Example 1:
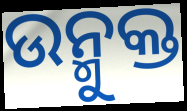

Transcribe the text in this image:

ଉନ୍ମୁକ୍ତ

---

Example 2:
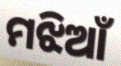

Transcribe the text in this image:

ମଝିଆଁ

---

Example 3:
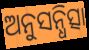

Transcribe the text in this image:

ଅନୁସନ୍ଧିତ୍ସା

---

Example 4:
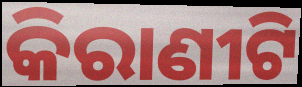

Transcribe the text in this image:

କିରାଣୀଟି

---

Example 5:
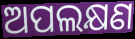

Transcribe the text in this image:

ଅପଲକ୍ଷଣ